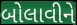
બોલાવીને